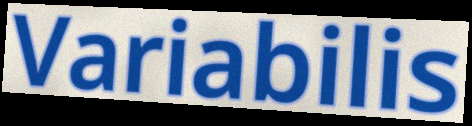
Variabilis